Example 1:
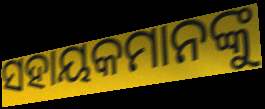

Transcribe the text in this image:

ସହାୟକମାନଙ୍କୁ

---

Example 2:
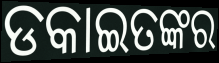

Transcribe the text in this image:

ଡକାଇତଙ୍କର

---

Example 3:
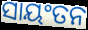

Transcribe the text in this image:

ସାୟଂତନ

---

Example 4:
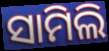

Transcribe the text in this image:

ସାମିଲି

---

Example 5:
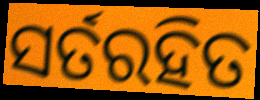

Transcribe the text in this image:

ସର୍ତରହିତ